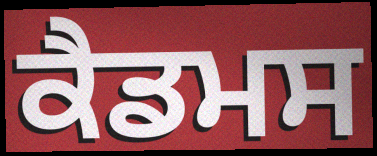
ਕੈਡਮਸ